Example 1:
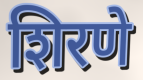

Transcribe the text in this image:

शिरणे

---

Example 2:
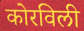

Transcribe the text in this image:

कोरविली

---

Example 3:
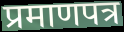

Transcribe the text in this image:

प्रमाणपत्र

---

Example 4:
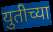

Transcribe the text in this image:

युतीच्या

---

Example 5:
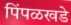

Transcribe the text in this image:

पिंपळखडे